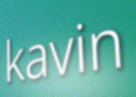
kavin